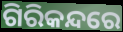
ଗିରିକନ୍ଦରେ